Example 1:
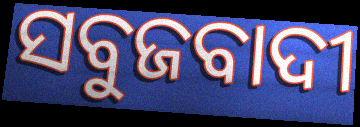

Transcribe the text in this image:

ସବୁଜବାଦୀ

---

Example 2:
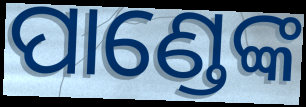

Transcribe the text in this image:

ପାଣ୍ଡେଙ୍କ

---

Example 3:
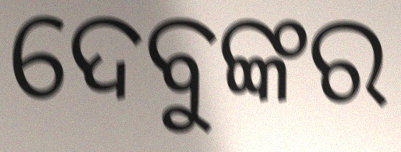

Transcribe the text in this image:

ଦେବୁଙ୍କର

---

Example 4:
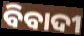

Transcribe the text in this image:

ବିବାଦୀ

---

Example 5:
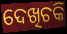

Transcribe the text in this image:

ଦେଖିଚକି